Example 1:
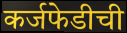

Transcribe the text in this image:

कर्जफेडीची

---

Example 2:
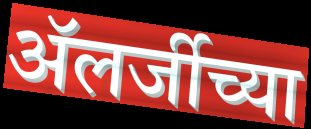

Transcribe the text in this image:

ॲलर्जीच्या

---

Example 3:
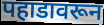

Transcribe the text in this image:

पहाडावरून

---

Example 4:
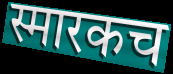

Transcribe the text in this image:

स्मारकच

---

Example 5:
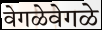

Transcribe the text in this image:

वेगळेवेगळे